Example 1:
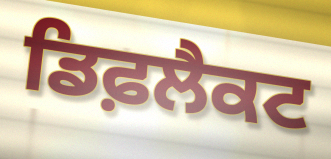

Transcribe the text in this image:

ਡਿਫ਼ਲੈਕਟ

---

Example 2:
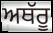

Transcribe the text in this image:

ਅਥੱਰੂ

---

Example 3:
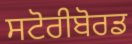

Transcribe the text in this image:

ਸਟੋਰੀਬੋਰਡ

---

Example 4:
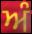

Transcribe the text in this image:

ਅੰ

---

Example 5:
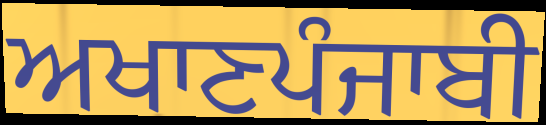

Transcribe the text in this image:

ਅਖਾਣਪੰਜਾਬੀ